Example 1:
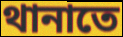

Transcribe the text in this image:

থানাতে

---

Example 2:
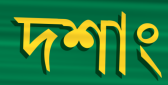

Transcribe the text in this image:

দশাং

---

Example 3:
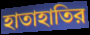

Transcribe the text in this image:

হাতাহাতির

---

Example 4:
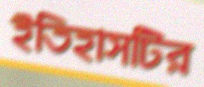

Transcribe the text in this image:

ইতিহাসটির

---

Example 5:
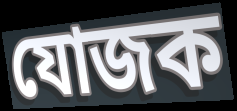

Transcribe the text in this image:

যোজক